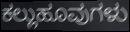
ಕಲ್ಲುಹೂವುಗಳು